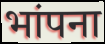
भांपना